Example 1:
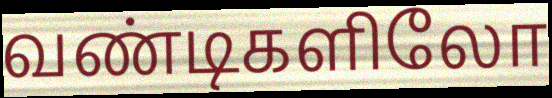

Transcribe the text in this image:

வண்டிகளிலோ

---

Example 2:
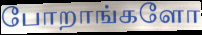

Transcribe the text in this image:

போறாங்களோ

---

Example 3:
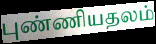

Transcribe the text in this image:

புண்ணியதலம்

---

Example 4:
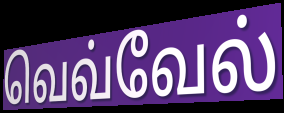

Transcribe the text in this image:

வெவ்வேல்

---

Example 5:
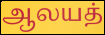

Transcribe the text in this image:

ஆலயத்